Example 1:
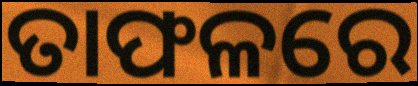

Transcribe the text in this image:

ତାଫଳରେ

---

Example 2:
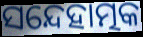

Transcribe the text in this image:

ସନ୍ଦେହାତ୍ମକ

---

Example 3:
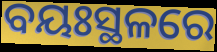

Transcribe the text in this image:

ବୟଃସ୍ଥଳରେ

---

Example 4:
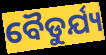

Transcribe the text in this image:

ବୈଡୁର୍ଯ୍ୟ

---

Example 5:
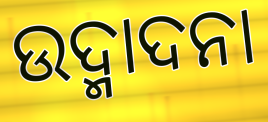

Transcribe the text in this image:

ଉଦ୍ମାଦନା